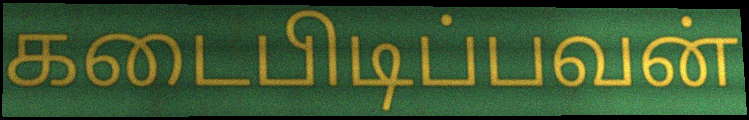
கடைபிடிப்பவன்